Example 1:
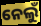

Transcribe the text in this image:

ନେଲୁଁ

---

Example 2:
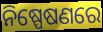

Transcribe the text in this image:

ନିଷ୍ପେଷଣରେ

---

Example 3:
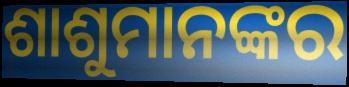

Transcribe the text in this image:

ଶାଶୁମାନଙ୍କର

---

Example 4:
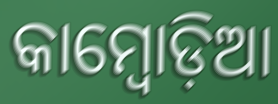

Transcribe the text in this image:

କାମ୍ବୋଡ଼ିଆ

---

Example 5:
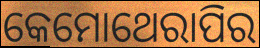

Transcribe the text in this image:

କେମୋଥେରାପିର